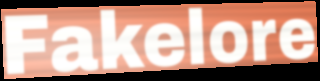
Fakelore